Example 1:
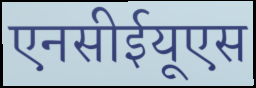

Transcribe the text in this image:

एनसीईयूएस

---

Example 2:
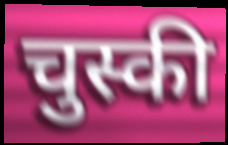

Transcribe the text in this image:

चुस्की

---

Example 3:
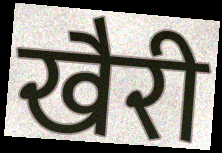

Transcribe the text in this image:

खैरी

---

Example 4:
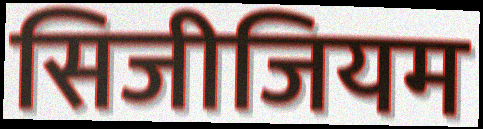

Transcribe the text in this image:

सिजीजियम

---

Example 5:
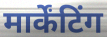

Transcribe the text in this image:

मार्केंटिंग